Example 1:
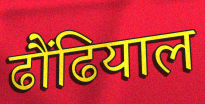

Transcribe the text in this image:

ढौंढियाल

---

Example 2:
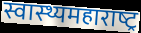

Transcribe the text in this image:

स्वास्थ्यमहाराष्ट्र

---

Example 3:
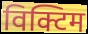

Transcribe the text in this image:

विक्टिम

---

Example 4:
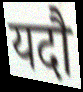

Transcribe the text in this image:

यदौ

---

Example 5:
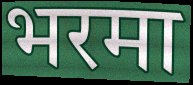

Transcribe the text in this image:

भरमा